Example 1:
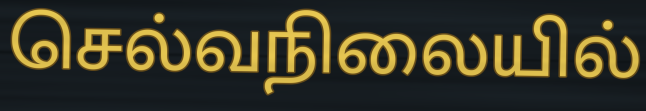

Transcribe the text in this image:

செல்வநிலையில்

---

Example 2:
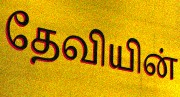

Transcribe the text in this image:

தேவியின்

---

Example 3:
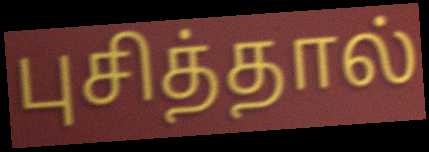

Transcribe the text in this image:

புசித்தால்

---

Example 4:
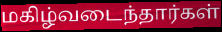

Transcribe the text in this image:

மகிழ்வடைந்தார்கள்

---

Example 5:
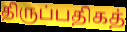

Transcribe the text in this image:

திருப்பதிகத்